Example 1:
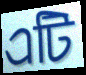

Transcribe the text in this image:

এটি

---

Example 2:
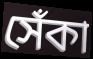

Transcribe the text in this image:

সেঁকা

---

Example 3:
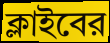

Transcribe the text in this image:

ক্লাইবের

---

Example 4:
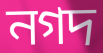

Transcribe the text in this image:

নগদ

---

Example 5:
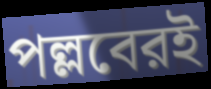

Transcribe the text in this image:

পল্লবেরই